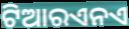
ଟିଆରଏନଏ